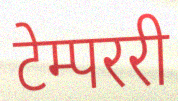
टेम्पररी